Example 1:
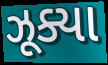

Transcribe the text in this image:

ઝૂક્યા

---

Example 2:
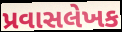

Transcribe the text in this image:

પ્રવાસલેખક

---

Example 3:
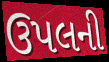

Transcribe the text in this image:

ઉપલની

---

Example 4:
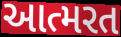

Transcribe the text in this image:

આત્મરત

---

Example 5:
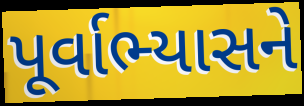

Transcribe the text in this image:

પૂર્વાભ્યાસને